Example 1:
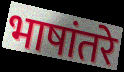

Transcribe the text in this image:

भाषांतरे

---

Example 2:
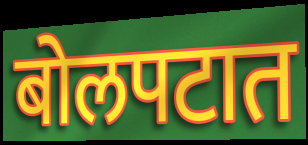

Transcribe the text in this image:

बोलपटात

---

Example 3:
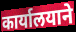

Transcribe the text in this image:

कार्यालयाने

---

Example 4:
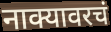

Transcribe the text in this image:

नाक्यावरचं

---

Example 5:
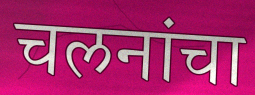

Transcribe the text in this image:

चलनांचा